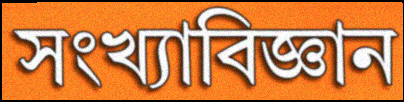
সংখ্যাবিজ্ঞান